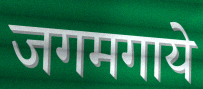
जगमगाये